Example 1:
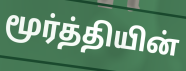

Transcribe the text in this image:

மூர்த்தியின்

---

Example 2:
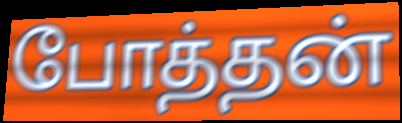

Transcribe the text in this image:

போத்தன்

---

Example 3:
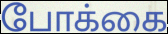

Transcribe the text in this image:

போக்கை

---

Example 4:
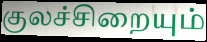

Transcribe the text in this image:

குலச்சிறையும்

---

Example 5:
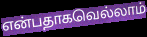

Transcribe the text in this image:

என்பதாகவெல்லாம்